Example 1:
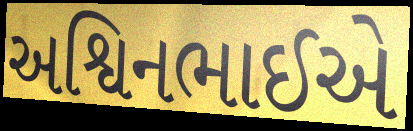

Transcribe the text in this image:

અશ્વિનભાઈએ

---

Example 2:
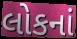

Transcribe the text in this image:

લોકનાં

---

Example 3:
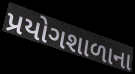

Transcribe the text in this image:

પ્રયોગશાળાના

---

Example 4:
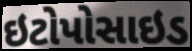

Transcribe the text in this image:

ઇટોપોસાઇડ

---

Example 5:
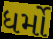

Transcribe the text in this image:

ધર્મો